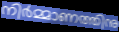
നിർമ്മാണത്തിനു